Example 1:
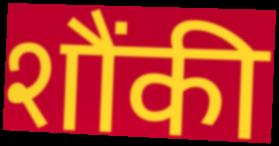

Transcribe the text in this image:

शौंकी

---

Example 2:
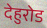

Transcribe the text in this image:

देहुरोड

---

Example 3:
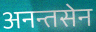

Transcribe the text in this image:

अनन्तसेन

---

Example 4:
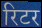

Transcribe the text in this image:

रिटर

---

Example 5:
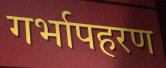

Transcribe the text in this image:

गर्भापहरण